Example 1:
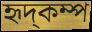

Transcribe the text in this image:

হৃদ্কম্প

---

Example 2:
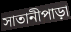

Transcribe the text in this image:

সাতানীপাড়া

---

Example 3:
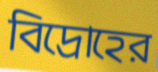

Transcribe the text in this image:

বিদ্রোহের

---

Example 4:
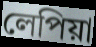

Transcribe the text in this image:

লেপিয়া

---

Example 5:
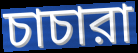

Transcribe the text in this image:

চাচারা